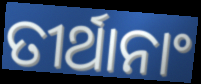
ତୀର୍ଥାନାଂ